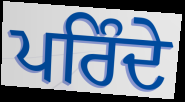
ਪਰਿੰਦੇ